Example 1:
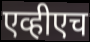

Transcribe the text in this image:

एव्हीएच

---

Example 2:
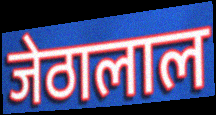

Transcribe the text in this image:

जेठालाल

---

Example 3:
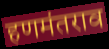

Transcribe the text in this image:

हणमंतराव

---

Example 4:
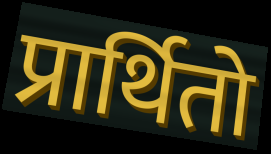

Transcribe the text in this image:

प्रार्थितो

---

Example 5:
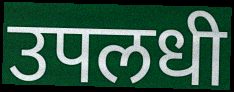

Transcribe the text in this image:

उपलधी